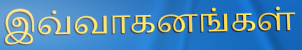
இவ்வாகனங்கள்